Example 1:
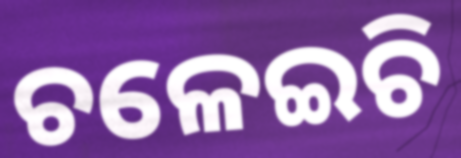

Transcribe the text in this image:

ଚଳେଇଚି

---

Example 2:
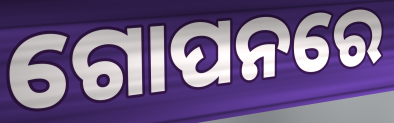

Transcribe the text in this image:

ଗୋପନରେ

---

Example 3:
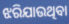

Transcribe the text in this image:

ଝରିଯାଉଥିବା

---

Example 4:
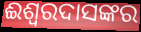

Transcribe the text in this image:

ଈଶ୍ଵରଦାସଙ୍କର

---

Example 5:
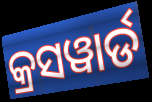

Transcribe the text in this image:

କ୍ରସୱାର୍ଡ